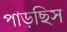
পাড়ছিস